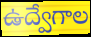
ఉద్వేగాల